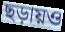
ছড়ায়ও